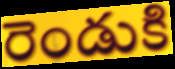
రెండుకి